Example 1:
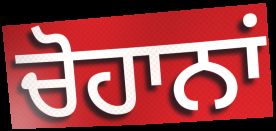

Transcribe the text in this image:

ਚੋਹਾਨਾਂ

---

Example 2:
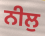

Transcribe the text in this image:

ਨੀਲੁ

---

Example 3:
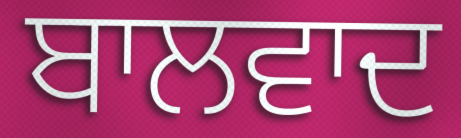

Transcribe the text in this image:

ਬਾਲਵਾਦ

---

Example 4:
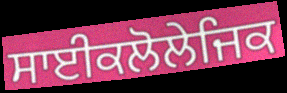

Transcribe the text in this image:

ਸਾਈਕਲੋਲੇਜਿਕ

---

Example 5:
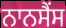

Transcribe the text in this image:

ਨਾਨਸੈਂਸ